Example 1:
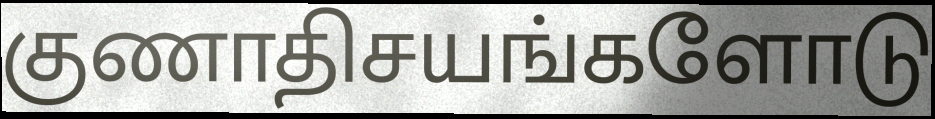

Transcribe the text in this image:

குணாதிசயங்களோடு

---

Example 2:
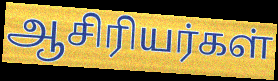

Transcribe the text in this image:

ஆசிரியர்கள்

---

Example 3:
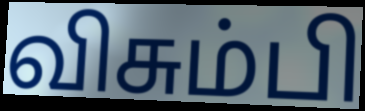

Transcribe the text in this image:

விசும்பி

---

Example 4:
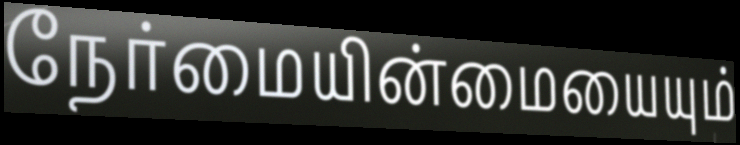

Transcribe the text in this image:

நேர்மையின்மையையும்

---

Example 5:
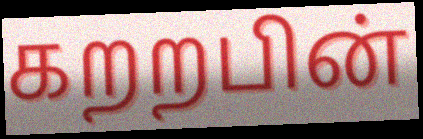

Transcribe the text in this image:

கறறபின்